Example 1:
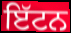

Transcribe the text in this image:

ਇੱਟਨ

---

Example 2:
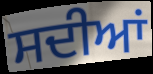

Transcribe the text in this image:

ਸਦੀਆਂ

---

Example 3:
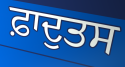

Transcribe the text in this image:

ਫ਼ਾਦੁਤਸ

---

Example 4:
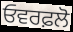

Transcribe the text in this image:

ਓਵਰਫ਼ਲੋ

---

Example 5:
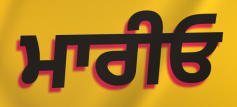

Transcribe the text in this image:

ਮਾਰੀਓ